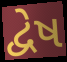
દ્વેષ